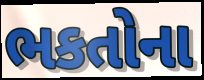
ભકતોના